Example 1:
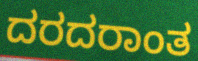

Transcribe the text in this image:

ದರದರಾಂತ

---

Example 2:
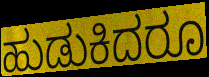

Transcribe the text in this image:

ಹುಡುಕಿದರೂ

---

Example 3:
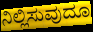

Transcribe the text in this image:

ನಿಲ್ಲಿಸುವುದೂ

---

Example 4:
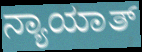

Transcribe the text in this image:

ನ್ಯಾಯಾತ್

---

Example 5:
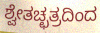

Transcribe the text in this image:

ಶ್ವೇತಚ್ಛತ್ರದಿಂದ